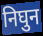
निघुन